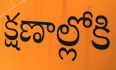
క్షణాల్లోకి